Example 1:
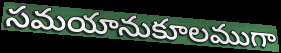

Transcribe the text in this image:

సమయానుకూలముగా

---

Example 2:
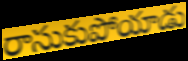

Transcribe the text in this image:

రాసుకుపోయాడు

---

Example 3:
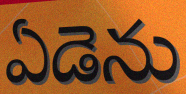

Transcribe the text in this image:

ఏడెను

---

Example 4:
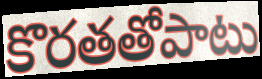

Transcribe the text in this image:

కొరతతోపాటు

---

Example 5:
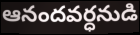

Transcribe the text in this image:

ఆనందవర్ధనుడి